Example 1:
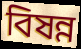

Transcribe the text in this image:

বিষন্ন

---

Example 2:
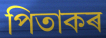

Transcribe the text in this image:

পিতাকৰ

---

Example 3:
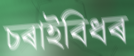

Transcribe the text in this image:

চৰাইবিধৰ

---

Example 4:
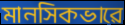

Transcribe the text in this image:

মানসিকভাৱে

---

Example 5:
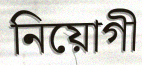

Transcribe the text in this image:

নিয়োগী